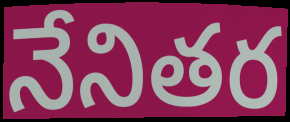
నేనితర